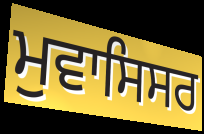
ਮੁਵਾਸਿਸਰ